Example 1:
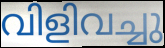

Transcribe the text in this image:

വിളിവച്ചു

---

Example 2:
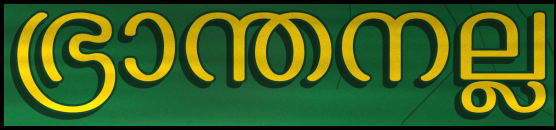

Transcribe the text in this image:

ഭ്രാന്തനല്ല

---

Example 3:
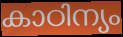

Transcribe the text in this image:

കാഠിന്യം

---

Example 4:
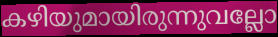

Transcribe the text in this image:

കഴിയുമായിരുന്നുവല്ലോ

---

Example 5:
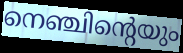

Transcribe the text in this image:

നെഞ്ചിന്റെയും